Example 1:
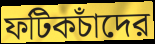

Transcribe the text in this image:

ফটিকচাঁদের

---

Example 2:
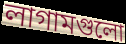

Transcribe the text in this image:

লাগামগুলো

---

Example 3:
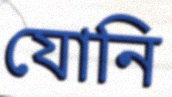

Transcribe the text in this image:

যোনি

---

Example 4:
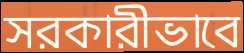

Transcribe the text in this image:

সরকারীভাবে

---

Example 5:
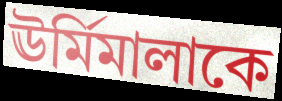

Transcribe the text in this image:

ঊর্মিমালাকে